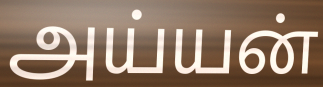
அய்யன்